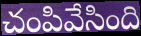
చంపివేసింది